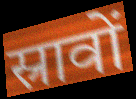
स्रावों